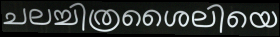
ചലച്ചിത്രശൈലിയെ